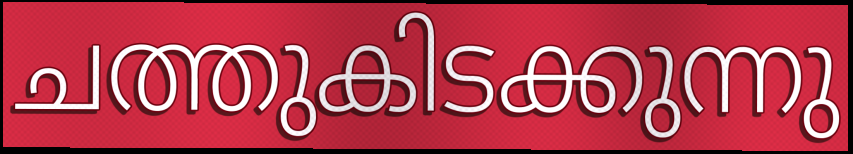
ചത്തുകിടക്കുന്നു